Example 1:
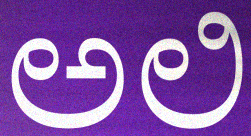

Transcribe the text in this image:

ಅಲಿ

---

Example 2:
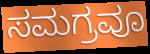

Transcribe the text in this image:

ಸಮಗ್ರವೂ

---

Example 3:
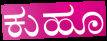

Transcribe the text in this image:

ಕುಹೂ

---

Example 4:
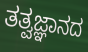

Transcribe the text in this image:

ತತ್ವಜ್ಞಾನದ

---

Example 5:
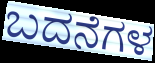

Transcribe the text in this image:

ಬದನೆಗಳ